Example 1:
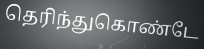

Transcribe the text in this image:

தெரிந்துகொண்டே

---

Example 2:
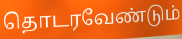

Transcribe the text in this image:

தொடரவேண்டும்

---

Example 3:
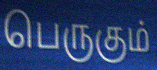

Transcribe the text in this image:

பெருகும்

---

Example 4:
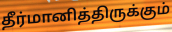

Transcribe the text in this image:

தீர்மானித்திருக்கும்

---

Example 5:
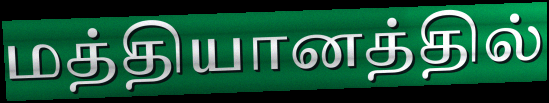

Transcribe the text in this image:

மத்தியானத்தில்